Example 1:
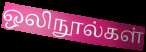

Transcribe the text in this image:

ஒலிநூல்கள்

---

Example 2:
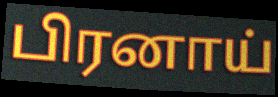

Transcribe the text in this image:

பிரனாய்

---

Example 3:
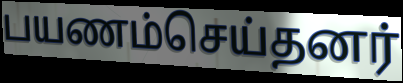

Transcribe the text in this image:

பயணம்செய்தனர்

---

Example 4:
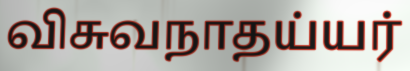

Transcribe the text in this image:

விசுவநாதய்யர்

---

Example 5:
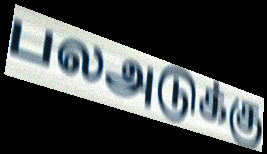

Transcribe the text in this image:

பலஅடுக்கு